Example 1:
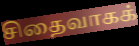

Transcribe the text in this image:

சிதைவாகக்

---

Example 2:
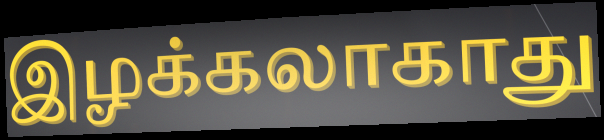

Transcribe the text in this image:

இழக்கலாகாது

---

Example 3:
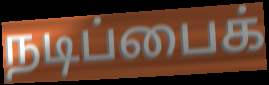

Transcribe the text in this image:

நடிப்பைக்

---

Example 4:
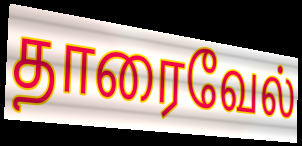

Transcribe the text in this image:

தாரைவேல்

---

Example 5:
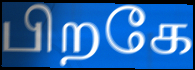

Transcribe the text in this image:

பிறகே